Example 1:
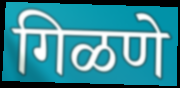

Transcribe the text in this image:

गिळणे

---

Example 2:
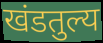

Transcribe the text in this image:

खंडतुल्य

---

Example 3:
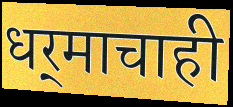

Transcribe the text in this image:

धर्माचाही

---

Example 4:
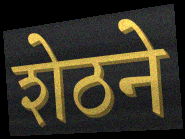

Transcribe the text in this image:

शेठने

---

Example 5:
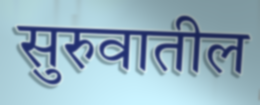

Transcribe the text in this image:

सुरुवातील